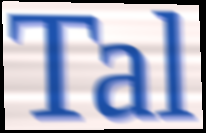
Tal